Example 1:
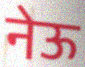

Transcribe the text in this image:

नेऊ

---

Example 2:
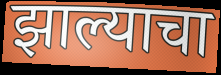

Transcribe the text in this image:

झाल्‍याचा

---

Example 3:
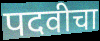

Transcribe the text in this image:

पदवीचा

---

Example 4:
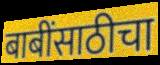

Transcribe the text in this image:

बाबींसाठीचा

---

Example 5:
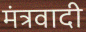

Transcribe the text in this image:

मंत्रवादी